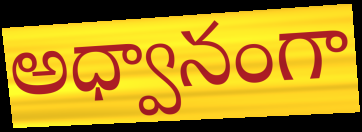
అధ్వానంగా